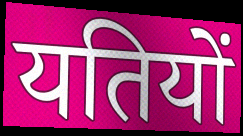
यतियों